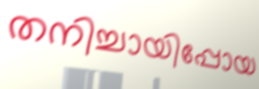
തനിച്ചായിപ്പോയ